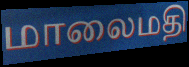
மாலைமதி